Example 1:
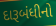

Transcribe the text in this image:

દારૂબંધીનો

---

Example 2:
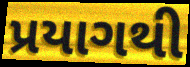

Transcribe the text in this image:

પ્રયાગથી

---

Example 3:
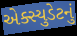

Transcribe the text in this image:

એક્સ્યુડેટનું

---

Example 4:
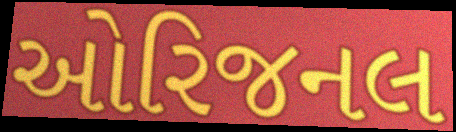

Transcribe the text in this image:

ઓરિજનલ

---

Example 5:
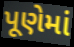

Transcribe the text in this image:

પૂણેમાં